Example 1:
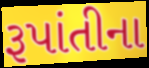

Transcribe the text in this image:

રૂપાંતીના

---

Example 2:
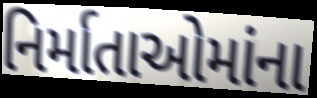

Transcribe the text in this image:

નિર્માતાઓમાંના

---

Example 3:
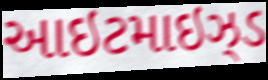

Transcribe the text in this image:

આઇટમાઇઝ્ડ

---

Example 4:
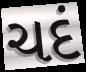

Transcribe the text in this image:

ચદં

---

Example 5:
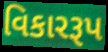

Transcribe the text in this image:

વિકારરૂપ